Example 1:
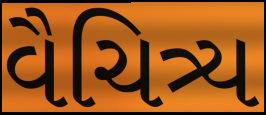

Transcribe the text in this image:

વૈચિત્ર્ય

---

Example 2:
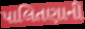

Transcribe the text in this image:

પાલિતણાની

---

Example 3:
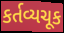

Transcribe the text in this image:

કર્તવ્યચૂક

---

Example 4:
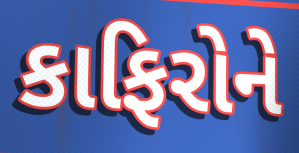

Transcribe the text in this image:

કાફિરોને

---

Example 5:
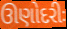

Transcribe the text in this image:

ઊણોદરીઃ